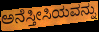
ಅನೆಸ್ತೀಸಿಯವನ್ನು